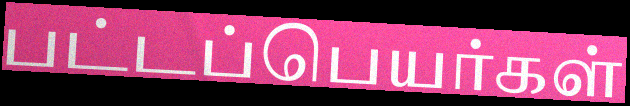
பட்டப்பெயர்கள்